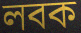
লবক